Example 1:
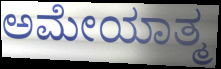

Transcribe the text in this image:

ಅಮೇಯಾತ್ಮ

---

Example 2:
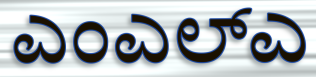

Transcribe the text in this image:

ಎಂಎಲ್ಎ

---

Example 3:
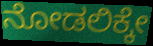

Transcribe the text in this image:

ನೋಡಲಿಕ್ಕೇ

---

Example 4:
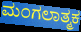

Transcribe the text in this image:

ಮಂಗಲಾತ್ಮಕ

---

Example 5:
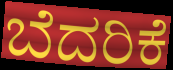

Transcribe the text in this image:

ಬೆದರಿಕೆ